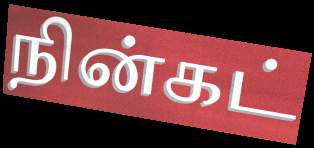
நின்கட்